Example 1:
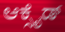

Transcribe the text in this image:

ಆಕ್ಸೈಡ್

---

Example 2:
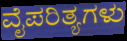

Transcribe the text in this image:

ವೈಪರಿತ್ಯಗಳು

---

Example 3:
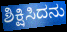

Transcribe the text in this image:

ಶಿಕ್ಷಿಸಿದನು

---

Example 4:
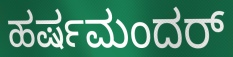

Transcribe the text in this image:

ಹರ್ಷಮಂದರ್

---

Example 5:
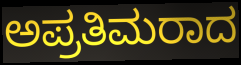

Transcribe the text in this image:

ಅಪ್ರತಿಮರಾದ